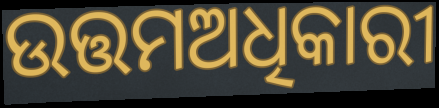
ଉତ୍ତମଅଧିକାରୀ